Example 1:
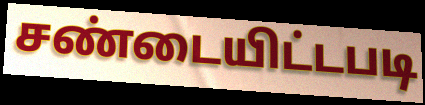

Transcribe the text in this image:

சண்டையிட்டபடி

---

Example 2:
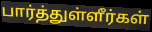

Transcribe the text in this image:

பார்த்துள்ளீர்கள்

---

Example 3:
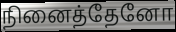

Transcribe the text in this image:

நினைத்தேனோ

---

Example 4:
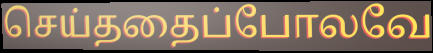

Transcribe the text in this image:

செய்ததைப்போலவே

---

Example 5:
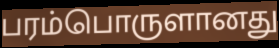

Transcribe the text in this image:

பரம்பொருளானது